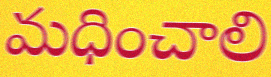
మధించాలి